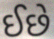
ઈછે